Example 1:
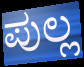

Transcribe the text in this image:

ಪುಲ್ಲ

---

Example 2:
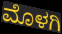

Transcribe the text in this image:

ಮೊಳಗಿ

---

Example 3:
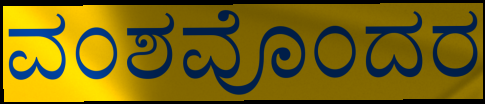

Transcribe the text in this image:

ವಂಶವೊಂದರ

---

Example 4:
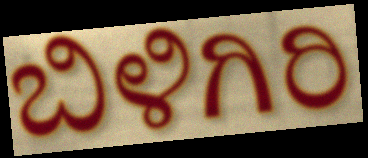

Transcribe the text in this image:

ಬಿಳಿಗಿರಿ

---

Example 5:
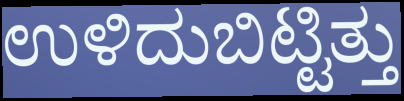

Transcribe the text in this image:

ಉಳಿದುಬಿಟ್ಟಿತ್ತು